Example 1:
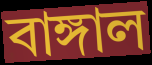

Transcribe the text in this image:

বাঙ্গাল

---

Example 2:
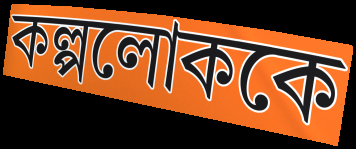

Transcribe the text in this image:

কল্পলোককে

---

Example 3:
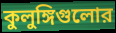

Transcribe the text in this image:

কুলুঙ্গিগুলোর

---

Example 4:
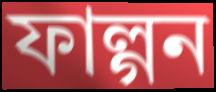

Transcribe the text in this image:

ফাল্গন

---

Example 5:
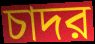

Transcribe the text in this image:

চাদর